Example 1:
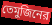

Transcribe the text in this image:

তেমুজিনের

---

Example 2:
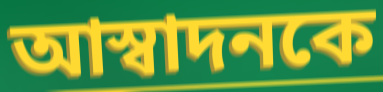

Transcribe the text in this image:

আস্বাদনকে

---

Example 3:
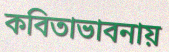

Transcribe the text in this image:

কবিতাভাবনায়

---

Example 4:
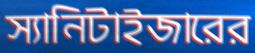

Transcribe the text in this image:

স্যানিটাইজারের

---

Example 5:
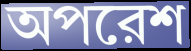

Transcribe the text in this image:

অপরেশ